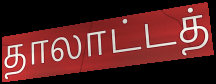
தாலாட்டத்